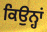
ਕਿਉਨ੍ਹਾਂ